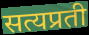
सत्यप्रती